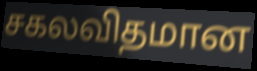
சகலவிதமான